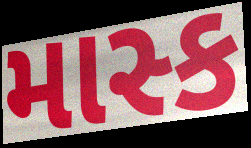
માસ્ક